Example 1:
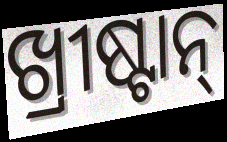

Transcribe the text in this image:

ଖ୍ରୀଷ୍ଟାନ୍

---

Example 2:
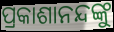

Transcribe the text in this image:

ପ୍ରକାଶାନନ୍ଦଙ୍କୁ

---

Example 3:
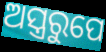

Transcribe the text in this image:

ଅସ୍ତ୍ରରୁପେ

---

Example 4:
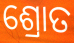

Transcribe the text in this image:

ଶ୍ରୋତ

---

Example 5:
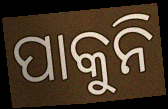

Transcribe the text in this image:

ପାକୁନି